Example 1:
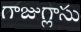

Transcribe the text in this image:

గాజుగ్లాసు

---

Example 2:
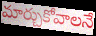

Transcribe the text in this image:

మార్చుకోవాలనే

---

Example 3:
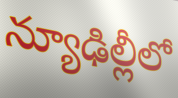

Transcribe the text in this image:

న్యూఢిల్లీలో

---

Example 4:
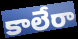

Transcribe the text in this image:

కాలేరా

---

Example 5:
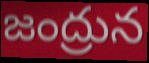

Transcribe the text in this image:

జంద్రున